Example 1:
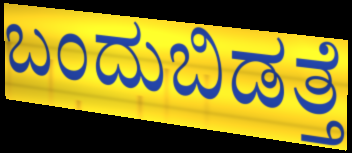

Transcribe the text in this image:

ಬಂದುಬಿಡತ್ತೆ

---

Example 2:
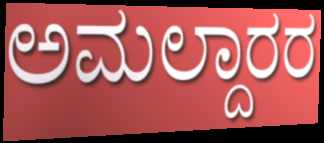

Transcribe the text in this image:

ಅಮಲ್ದಾರರ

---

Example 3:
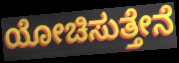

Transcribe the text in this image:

ಯೋಚಿಸುತ್ತೇನೆ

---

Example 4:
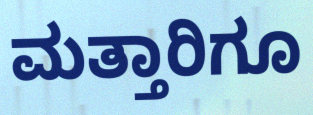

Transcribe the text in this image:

ಮತ್ತಾರಿಗೂ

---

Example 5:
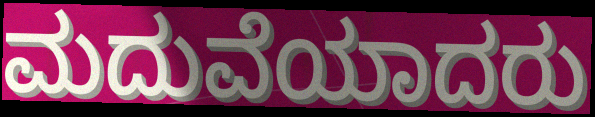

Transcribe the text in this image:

ಮದುವೆಯಾದರು